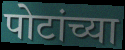
पोटांच्या